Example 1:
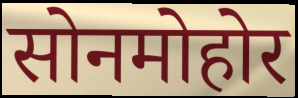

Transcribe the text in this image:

सोनमोहोर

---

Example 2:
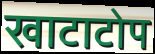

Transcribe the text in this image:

खाटाटोप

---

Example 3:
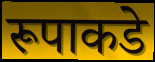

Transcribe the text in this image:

रूपाकडे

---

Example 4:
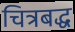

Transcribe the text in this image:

चित्रबद्ध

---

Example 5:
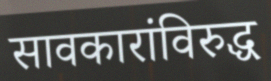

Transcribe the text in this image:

सावकारांविरुद्ध